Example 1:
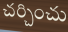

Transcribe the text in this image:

చర్చించు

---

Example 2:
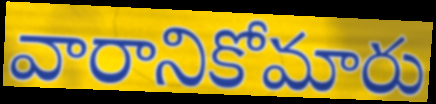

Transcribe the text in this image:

వారానికోమారు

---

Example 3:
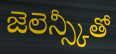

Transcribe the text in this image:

జెలెన్స్కీతో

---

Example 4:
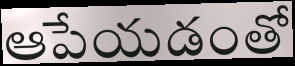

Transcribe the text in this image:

ఆపేయడంతో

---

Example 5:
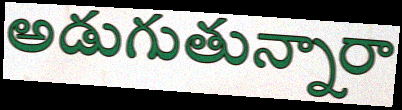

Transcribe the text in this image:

అడుగుతున్నారా